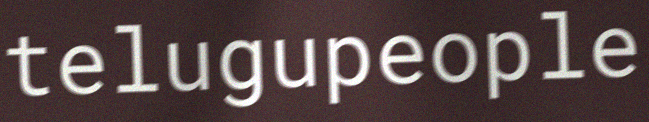
telugupeople